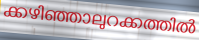
ക്കഴിഞ്ഞാലുറക്കത്തിൽ